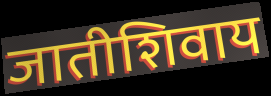
जातीशिवाय